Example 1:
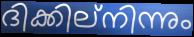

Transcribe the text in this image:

ദിക്കില്നിന്നും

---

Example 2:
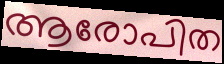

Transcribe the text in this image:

ആരോപിത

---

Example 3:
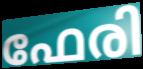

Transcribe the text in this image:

ഫേരി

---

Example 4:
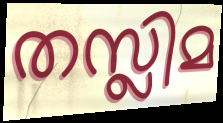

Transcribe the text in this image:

തസ്ലിമ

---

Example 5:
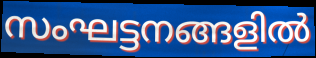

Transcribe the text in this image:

സംഘട്ടനങ്ങളിൽ